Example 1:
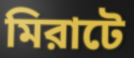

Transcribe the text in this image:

মিরাটে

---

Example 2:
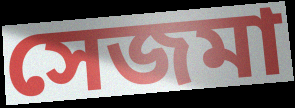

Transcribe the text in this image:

সেজমা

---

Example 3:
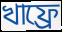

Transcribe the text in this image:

খাফ্রে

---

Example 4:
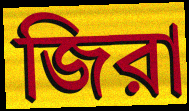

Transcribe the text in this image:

জিরা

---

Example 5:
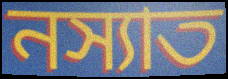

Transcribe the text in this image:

নস্যাত